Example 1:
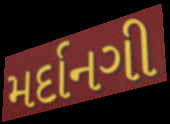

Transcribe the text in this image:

મર્દાનગી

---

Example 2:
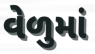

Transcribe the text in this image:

વેળુમાં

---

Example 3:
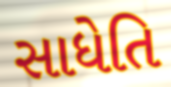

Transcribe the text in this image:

સાધેતિ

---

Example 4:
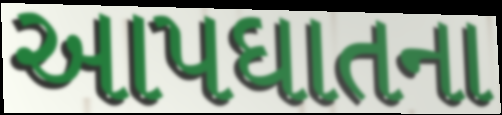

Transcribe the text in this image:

આપઘાતના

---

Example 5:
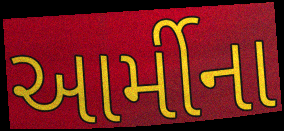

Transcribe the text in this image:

આર્મીના